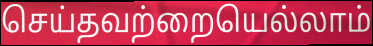
செய்தவற்றையெல்லாம்